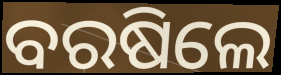
ବରଷିଲେ